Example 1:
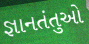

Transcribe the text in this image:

જ્ઞાનતંતુઓ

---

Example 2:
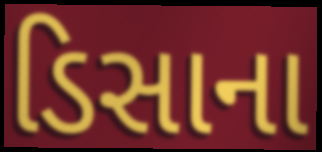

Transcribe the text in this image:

ડિસાના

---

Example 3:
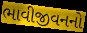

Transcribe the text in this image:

ભાવીજીવનનો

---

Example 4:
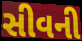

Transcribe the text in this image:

સીવની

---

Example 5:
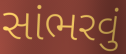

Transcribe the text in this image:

સાંભરવું